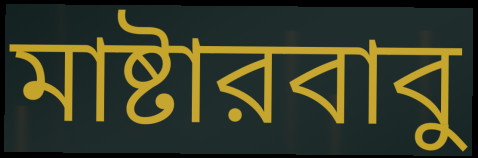
মাষ্টারবাবু